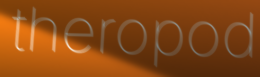
theropod